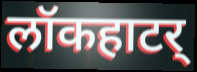
लॉकहाटर्